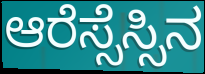
ಆರೆಸ್ಸೆಸ್ಸಿನ